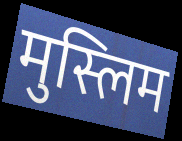
मुस्‍लिम